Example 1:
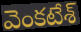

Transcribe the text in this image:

వెంకటేశ్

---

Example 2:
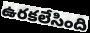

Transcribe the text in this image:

ఉరకలేసింది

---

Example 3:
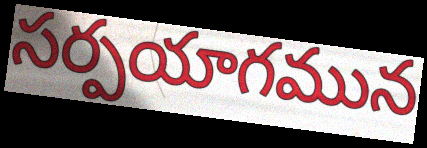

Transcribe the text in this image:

సర్పయాగమున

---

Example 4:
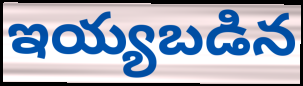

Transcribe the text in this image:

ఇయ్యబడిన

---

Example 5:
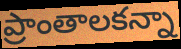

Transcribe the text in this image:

ప్రాంతాలకన్నా